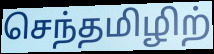
செந்தமிழிற்